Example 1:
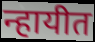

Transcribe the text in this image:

न्हायीत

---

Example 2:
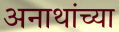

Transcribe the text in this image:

अनाथांच्या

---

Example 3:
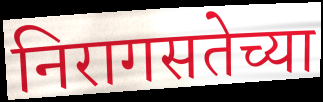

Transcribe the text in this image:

निरागसतेच्या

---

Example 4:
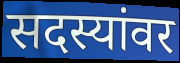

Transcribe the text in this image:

सदस्यांवर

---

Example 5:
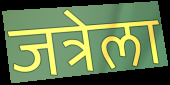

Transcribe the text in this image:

जत्रेला